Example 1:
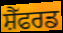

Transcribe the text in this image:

ਸ਼ੈੱਫਰਡ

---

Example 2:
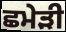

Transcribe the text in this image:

ਛਮੇੜੀ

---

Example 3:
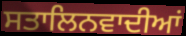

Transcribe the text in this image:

ਸਤਾਲਿਨਵਾਦੀਆਂ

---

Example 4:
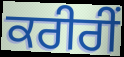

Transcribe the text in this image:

ਕਰੀਰੀਂ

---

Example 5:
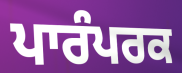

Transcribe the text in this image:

ਪਾਰੰਪਰਕ